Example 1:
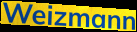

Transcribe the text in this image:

Weizmann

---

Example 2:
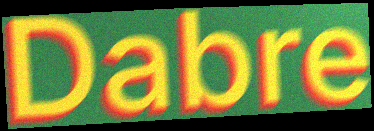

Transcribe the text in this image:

Dabre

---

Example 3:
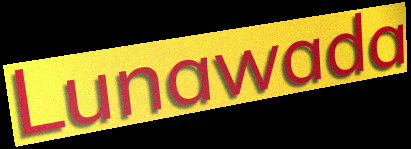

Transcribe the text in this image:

Lunawada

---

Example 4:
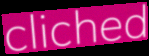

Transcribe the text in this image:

cliched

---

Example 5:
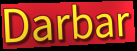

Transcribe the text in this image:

Darbar